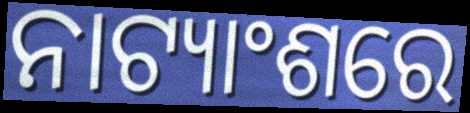
ନାଟ୍ୟାଂଶରେ